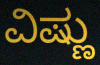
ವಿಷ್ಣು